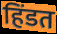
हिंडत